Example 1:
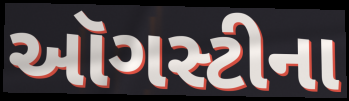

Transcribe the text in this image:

ઑગસ્ટીના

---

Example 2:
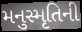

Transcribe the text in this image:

મનુસ્મૃતિની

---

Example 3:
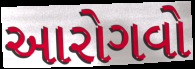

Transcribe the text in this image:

આરોગવો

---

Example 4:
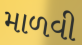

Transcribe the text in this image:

માળવી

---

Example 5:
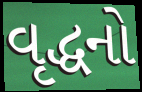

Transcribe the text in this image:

વૃદ્ધનો